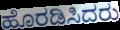
ಹೊರಡಿಸಿದರು